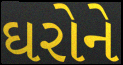
ઘરોને